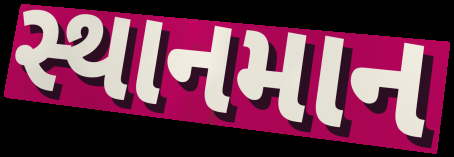
સ્થાનમાન